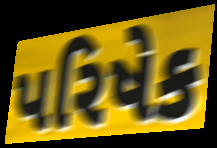
પરિષેક